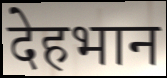
देहभान